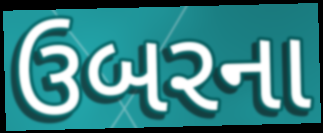
ઉબરના